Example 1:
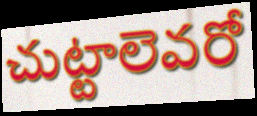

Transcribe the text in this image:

చుట్టాలెవరో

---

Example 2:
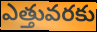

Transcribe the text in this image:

ఎత్తువరకు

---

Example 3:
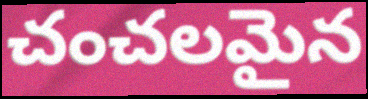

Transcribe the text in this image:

చంచలమైన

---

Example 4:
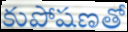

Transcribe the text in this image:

కుపోషణతో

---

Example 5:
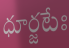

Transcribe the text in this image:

ధూర్జటేః